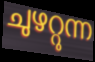
ചുഴറ്റുന്ന